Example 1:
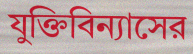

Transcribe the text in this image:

যুক্তিবিন্যাসের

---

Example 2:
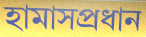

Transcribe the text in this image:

হামাসপ্রধান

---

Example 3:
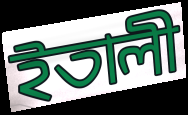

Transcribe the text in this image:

ইতালী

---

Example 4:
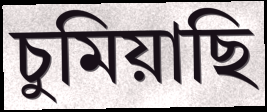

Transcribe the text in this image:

চুমিয়াছি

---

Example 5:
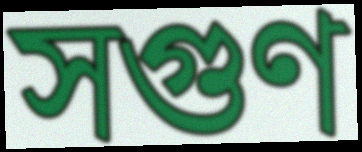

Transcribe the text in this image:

সগুণ